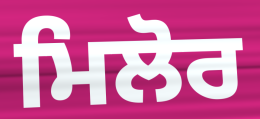
ਮਿਲੋਰ